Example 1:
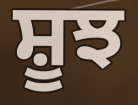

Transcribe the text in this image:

ਸ਼ੂਝ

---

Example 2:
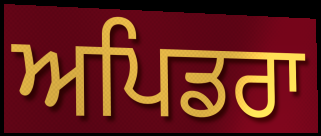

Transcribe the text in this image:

ਅਪਿਡਰਾ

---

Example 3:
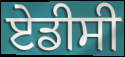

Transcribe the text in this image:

ਏਡੀਸੀ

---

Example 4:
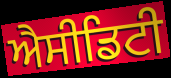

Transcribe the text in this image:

ਐਸੀਡਿਟੀ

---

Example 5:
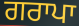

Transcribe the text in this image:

ਗਰਾਪਾ